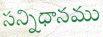
సన్నిధానము